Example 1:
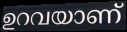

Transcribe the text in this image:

ഉറവയാണ്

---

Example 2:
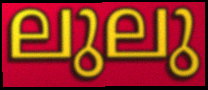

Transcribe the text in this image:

ലുലു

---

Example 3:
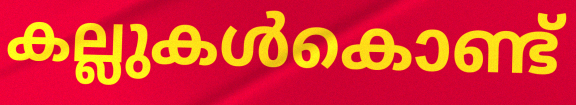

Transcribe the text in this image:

കല്ലുകൾകൊണ്ട്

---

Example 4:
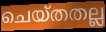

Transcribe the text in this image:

ചെയ്തതല്ല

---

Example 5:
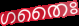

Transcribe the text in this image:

ഗതൈഃ